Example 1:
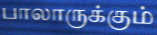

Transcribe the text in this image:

பாலாருக்கும்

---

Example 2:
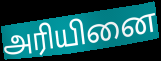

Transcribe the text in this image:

அரியினை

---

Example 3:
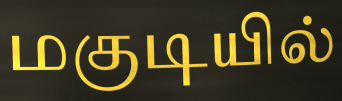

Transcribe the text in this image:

மகுடியில்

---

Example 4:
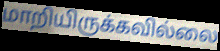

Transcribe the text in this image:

மாறியிருக்கவில்லை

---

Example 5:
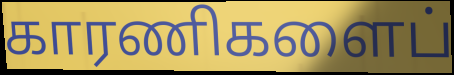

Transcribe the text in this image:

காரணிகளைப்